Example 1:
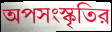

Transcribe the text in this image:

অপসংস্কৃতির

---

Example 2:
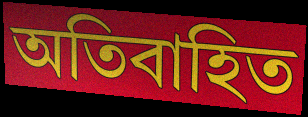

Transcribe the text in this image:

অতিবাহিত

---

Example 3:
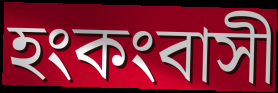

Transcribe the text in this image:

হংকংবাসী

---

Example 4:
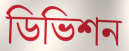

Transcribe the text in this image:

ডিভিশন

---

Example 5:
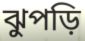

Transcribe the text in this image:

ঝুপড়ি